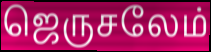
ஜெருசலேம்